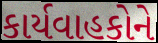
કાર્યવાહકોને